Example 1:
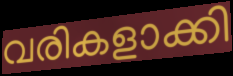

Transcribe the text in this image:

വരികളാക്കി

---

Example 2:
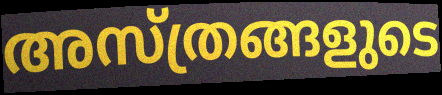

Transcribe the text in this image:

അസ്ത്രങ്ങളുടെ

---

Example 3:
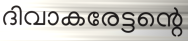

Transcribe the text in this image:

ദിവാകരേട്ടന്റെ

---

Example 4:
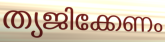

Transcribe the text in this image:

ത്യജിക്കേണം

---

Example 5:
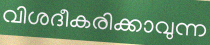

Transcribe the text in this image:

വിശദീകരിക്കാവുന്ന